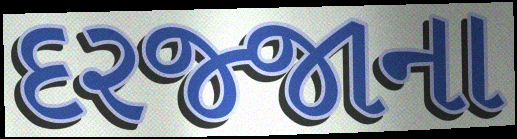
દરજ્જાના